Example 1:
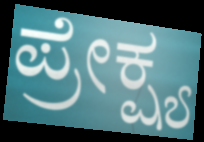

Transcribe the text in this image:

ಪ್ರೇಕ್ಷ್ಯ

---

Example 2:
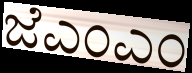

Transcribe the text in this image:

ಜೆಎಂಎಂ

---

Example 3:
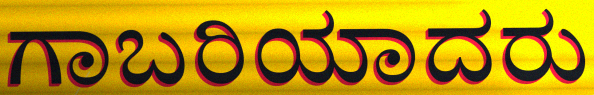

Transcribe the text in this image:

ಗಾಬರಿಯಾದರು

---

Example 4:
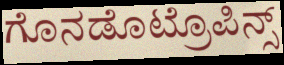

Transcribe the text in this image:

ಗೊನಡೊಟ್ರೊಪಿನ್ಸ್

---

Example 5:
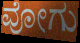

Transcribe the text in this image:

ವೋಗು